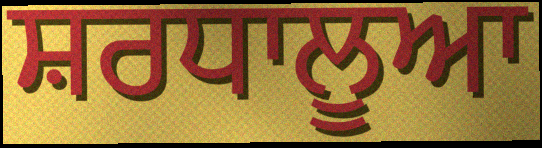
ਸ਼ਰਧਾਲੂਆ